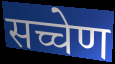
सच्चेण